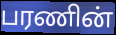
பரணின்